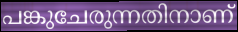
പങ്കുചേരുന്നതിനാണ്